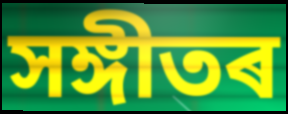
সঙ্গীতৰ